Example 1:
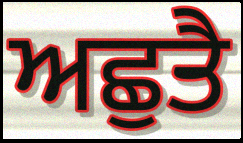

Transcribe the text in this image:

ਅਛੁਤੈ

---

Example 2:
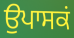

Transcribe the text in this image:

ਉਪਾਸਕਂ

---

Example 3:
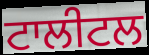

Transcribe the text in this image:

ਟਾਲੀਟਲ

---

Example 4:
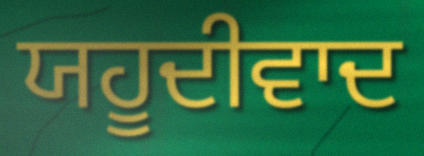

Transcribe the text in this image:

ਯਹੂਦੀਵਾਦ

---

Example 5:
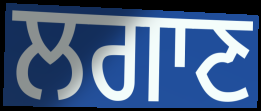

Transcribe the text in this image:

ਲਗਾਣ